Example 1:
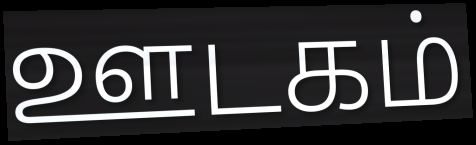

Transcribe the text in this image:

ஊடகம்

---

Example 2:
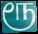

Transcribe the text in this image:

ரூ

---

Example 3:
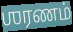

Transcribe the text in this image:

ஶரணம்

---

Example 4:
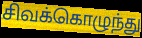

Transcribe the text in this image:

சிவக்கொழுந்து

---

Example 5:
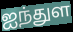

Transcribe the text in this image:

ஐந்துள